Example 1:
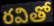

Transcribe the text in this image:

రవితో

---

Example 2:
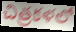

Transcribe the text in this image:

చిత్రకళలో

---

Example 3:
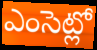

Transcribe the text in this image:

ఎంసెట్లో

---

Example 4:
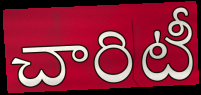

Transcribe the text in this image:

చారిటీ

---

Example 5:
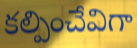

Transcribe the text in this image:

కల్పించేవిగా